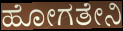
ಹೋಗತೇನಿ